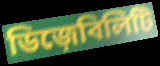
ডিজ়েবিলিটি